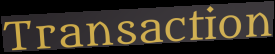
Transaction